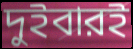
দুইবারই